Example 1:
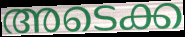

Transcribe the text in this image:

അടെക്ക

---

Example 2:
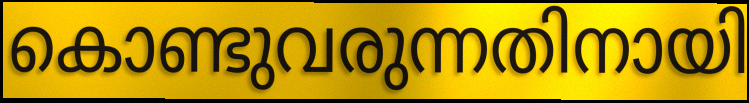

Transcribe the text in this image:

കൊണ്ടുവരുന്നതിനായി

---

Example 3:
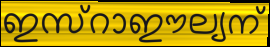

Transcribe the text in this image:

ഇസ്റാഈല്യന്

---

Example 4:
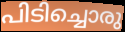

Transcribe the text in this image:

പിടിച്ചൊരു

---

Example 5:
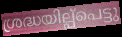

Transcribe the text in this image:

ശ്രദ്ധയില്പ്പെട്ടു